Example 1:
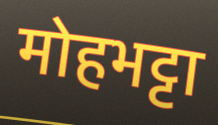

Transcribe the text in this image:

मोहभट्टा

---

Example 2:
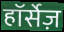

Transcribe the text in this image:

हॉर्सेज़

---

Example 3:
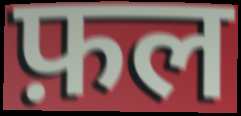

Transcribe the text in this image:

फ़ल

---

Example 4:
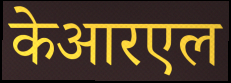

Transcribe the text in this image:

केआरएल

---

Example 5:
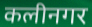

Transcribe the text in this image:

कलीनगर